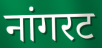
नांगरट